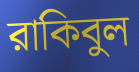
রাকিবুল